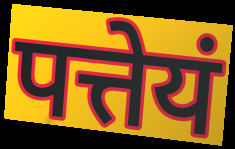
पत्तेयं